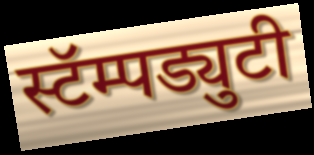
स्टॅम्पड्युटी